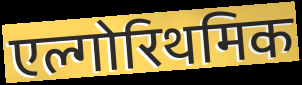
एल्गोरिथमिक